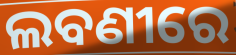
ଲବଣୀରେ